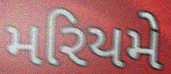
મરિયમે